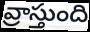
వ్రాస్తుంది